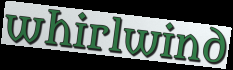
whirlwind